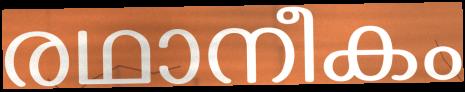
രഥാനീകം